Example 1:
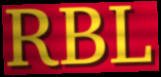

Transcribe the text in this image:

RBL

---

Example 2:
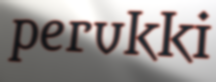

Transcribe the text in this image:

perukki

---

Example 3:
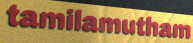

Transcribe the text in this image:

tamilamutham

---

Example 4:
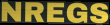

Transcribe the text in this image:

NREGS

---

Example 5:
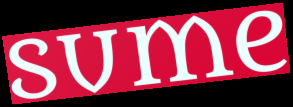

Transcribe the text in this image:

sume